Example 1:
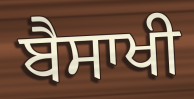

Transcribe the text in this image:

ਬੈਸਾਖੀ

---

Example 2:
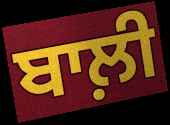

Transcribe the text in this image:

ਬਾਲ਼ੀ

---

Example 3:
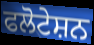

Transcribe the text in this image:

ਫਲੋਟੇਸ਼ਨ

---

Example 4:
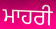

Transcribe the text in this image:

ਮਾਹਰੀ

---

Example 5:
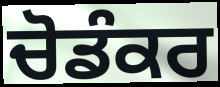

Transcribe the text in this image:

ਚੋਡੰਕਰ